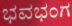
ಭವಭಂಗ